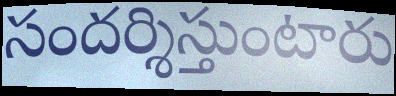
సందర్శిస్తుంటారు